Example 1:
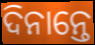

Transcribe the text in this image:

ଦିନାନ୍ତେ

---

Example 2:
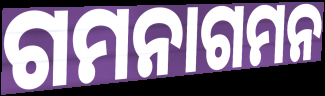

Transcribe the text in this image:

ଗମନାଗମନ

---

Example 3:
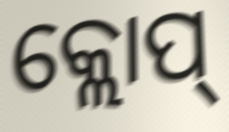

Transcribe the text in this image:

କ୍ଲୋପ୍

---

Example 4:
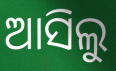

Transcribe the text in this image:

ଆସିଲୁ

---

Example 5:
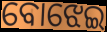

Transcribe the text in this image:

ବୋଝେଇ